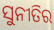
ସୁନୀତିର